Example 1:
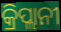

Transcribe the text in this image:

କ୍ରିପ୍ଲାନୀ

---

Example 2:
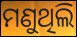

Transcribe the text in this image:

ମଣୁଥିଲି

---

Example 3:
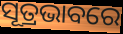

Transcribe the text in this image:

ସୂତ୍ରଭାବରେ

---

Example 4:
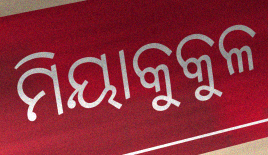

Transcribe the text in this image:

ମିୟାକୁକୁଳ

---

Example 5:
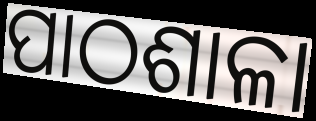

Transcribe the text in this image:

ପାଠଶାଳା